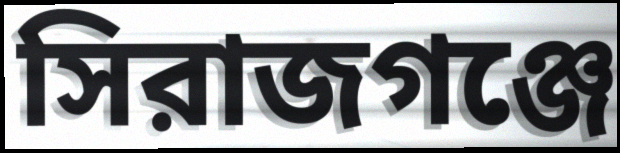
সিরাজগঞ্জে